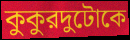
কুকুরদুটোকে